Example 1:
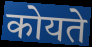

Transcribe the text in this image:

कोयते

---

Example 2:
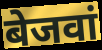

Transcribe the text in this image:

बेजवां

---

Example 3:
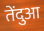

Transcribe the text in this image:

तेंदुआ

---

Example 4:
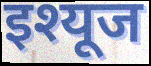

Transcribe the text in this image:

इश्यूज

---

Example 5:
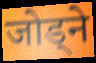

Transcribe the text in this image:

जोड्ने